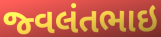
જ્વલંતભાઇ